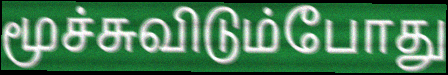
மூச்சுவிடும்போது